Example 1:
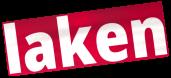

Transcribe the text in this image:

laken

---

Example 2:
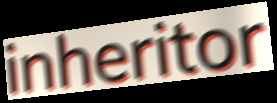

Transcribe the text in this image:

inheritor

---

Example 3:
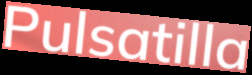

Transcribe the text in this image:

Pulsatilla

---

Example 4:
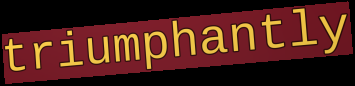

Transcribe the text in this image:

triumphantly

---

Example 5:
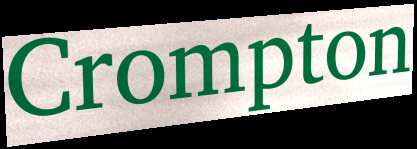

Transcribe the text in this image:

Crompton